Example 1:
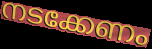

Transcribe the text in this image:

നടക്കേണം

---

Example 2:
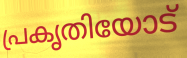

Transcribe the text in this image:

പ്രകൃതിയോട്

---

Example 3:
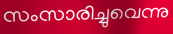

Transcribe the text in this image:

സംസാരിച്ചുവെന്നു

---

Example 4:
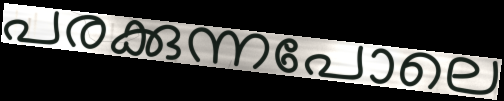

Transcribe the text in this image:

പരക്കുന്നപോലെ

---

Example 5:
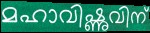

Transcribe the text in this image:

മഹാവിഷ്ണുവിന്